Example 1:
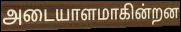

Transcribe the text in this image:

அடையாளமாகின்றன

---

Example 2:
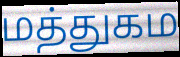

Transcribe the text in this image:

மத்துகம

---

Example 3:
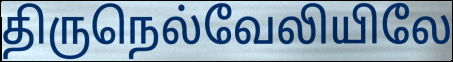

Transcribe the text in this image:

திருநெல்வேலியிலே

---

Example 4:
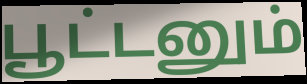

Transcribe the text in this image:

பூட்டனும்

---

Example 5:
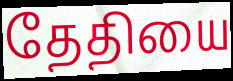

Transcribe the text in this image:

தேதியை